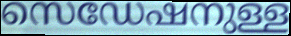
സെഡേഷനുള്ള